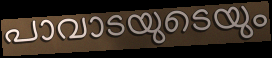
പാവാടയുടെയും